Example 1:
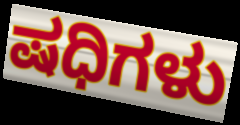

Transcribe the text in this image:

ಷಧಿಗಳು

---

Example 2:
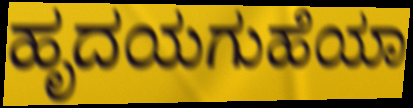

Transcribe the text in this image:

ಹೃದಯಗುಹೆಯಾ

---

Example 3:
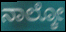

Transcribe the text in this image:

ನಾಲ್ಕೋ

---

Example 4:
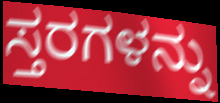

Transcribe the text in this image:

ಸ್ತರಗಳನ್ನು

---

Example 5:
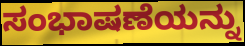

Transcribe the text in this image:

ಸಂಭಾಷಣೆಯನ್ನು